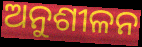
ଅନୁଶୀଳନ